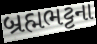
બ્રહ્મભટ્ટના